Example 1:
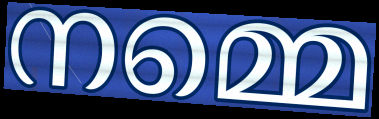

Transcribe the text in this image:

നമ്മെ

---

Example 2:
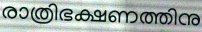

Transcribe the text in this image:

രാത്രിഭക്ഷണത്തിനു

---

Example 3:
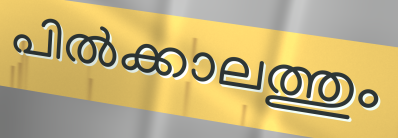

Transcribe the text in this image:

പിൽക്കാലത്തും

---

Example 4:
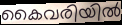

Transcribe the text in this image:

കൈവരിയിൽ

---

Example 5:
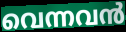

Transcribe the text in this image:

വെന്നവൻ